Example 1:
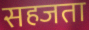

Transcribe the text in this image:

सहजता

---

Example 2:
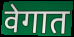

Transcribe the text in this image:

वेगात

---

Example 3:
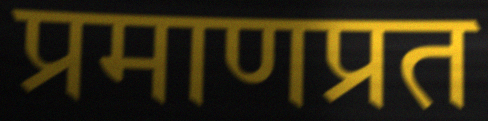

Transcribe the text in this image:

प्रमाणप्रत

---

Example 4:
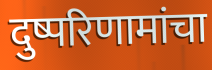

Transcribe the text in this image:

दुष्परिणामांचा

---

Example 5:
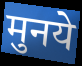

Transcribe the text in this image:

मुनये